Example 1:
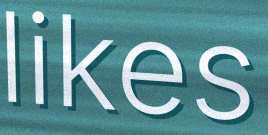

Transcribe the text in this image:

likes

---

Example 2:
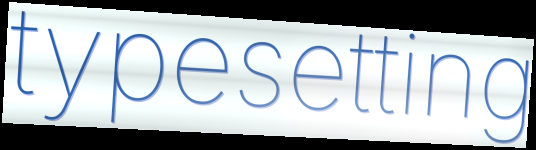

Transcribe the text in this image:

typesetting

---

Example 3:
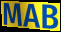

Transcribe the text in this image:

MAB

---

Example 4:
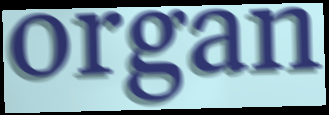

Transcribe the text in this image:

organ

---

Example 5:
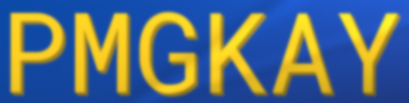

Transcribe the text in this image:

PMGKAY